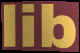
lib